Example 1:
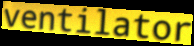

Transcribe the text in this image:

ventilator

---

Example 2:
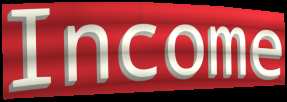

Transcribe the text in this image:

Income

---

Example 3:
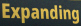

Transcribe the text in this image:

Expanding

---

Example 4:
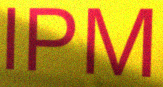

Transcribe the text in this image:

IPM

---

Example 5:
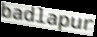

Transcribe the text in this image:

badlapur